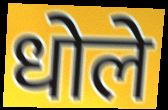
धोले